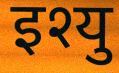
इश्यु